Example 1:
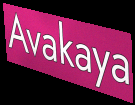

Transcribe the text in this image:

Avakaya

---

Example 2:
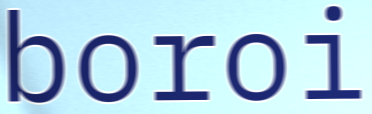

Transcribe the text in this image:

boroi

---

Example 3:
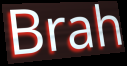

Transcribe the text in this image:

Brah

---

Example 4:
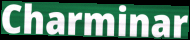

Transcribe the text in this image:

Charminar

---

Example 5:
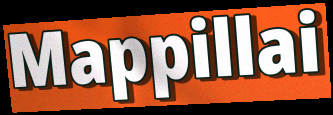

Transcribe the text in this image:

Mappillai